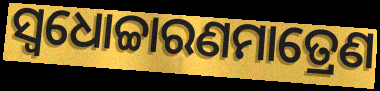
ସ୍ଵଧୋଚ୍ଚାରଣମାତ୍ରେଣ